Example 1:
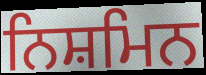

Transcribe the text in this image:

ਨਿਸ਼ਮਿਨ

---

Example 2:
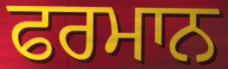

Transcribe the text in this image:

ਫਰਮਾਨ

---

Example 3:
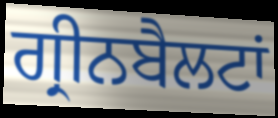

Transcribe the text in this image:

ਗ੍ਰੀਨਬੈਲਟਾਂ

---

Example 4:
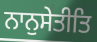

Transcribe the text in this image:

ਨਾਨੁਸੇਤੀਤਿ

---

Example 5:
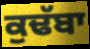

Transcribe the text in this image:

ਕੁਢੱਬਾ